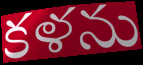
కళను